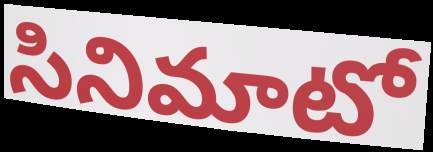
సినిమాటో